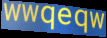
wwqeqw